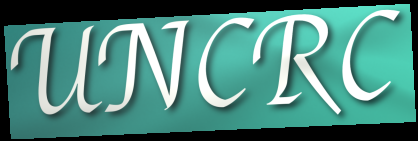
UNCRC